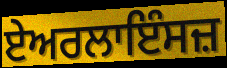
ਏਅਰਲਾਇੰਸਜ਼